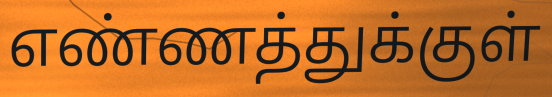
எண்ணத்துக்குள்